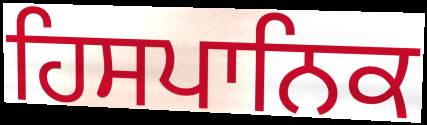
ਹਿਸਪਾਨਿਕ